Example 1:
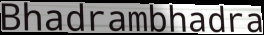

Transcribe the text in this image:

Bhadrambhadra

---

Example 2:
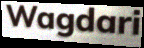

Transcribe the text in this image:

Wagdari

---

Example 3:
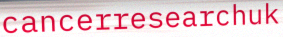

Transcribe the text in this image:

cancerresearchuk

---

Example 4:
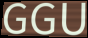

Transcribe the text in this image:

GGU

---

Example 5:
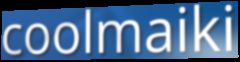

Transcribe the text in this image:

coolmaiki